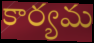
కార్యమ